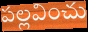
పల్లవించు